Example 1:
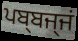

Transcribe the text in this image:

ਪਬ੍ਬਜ੍ਜਂ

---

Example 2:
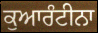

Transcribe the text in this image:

ਕੁਆਰੰਟੀਨਾ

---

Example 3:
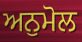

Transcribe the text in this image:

ਅਨੁਮੋਲ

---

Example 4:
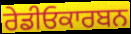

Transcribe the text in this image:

ਰੇਡੀਓਕਾਰਬਨ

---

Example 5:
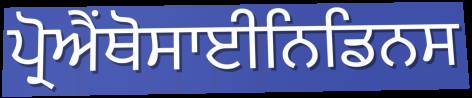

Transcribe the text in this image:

ਪ੍ਰੋਐਂਥੋਸਾਈਨਿਡਿਨਸ